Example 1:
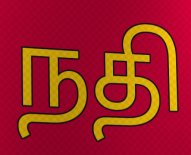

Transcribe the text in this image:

நதி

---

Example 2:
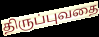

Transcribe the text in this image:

திருப்புவதை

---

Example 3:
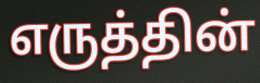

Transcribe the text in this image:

எருத்தின்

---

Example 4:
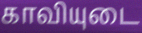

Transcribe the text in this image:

காவியுடை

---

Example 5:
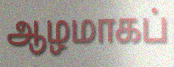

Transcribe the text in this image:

ஆழமாகப்